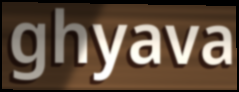
ghyava